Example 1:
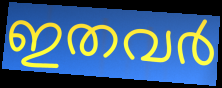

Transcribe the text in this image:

ഇതവർ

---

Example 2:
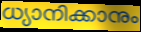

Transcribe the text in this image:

ധ്യാനിക്കാനും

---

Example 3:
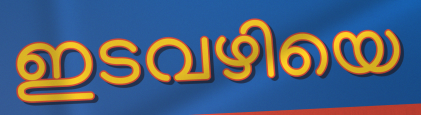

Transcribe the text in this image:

ഇടവഴിയെ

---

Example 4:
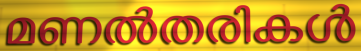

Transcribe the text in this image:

മണൽതരികൾ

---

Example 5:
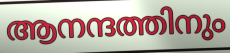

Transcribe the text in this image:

ആനന്ദത്തിനും